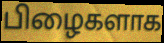
பிழைகளாக